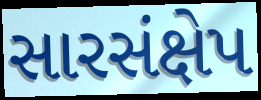
સારસંક્ષેપ